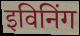
इविनिंग